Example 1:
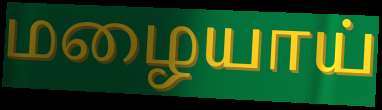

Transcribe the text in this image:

மழையாய்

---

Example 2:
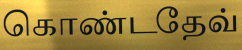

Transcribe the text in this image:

கொண்டதேவ்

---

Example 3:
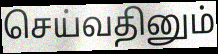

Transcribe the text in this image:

செய்வதினும்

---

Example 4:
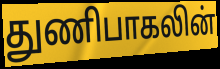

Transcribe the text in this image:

துணிபாகலின்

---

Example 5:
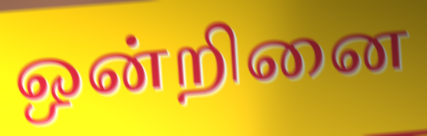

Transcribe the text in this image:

ஒன்றினை